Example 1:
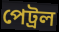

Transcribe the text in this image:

পেট্ৰল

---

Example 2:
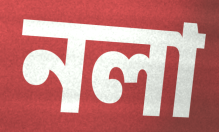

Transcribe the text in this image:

নলা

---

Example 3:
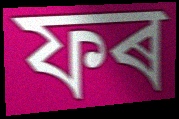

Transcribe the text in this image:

ফৰ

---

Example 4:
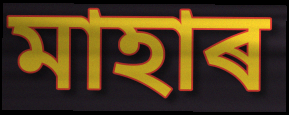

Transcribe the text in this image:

মাহাৰ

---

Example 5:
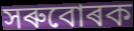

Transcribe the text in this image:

সৰুবোৰক